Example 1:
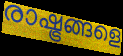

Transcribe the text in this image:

രാഷ്ട്രങ്ങളെ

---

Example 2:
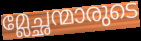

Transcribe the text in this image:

മ്ലേച്ഛന്മാരുടെ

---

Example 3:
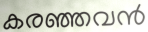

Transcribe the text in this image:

കരഞ്ഞവൻ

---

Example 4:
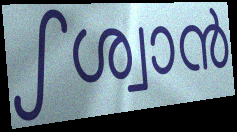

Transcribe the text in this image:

ഽശ്വാൻ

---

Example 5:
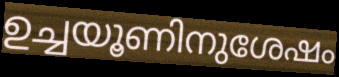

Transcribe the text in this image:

ഉച്ചയൂണിനുശേഷം